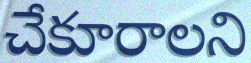
చేకూరాలని